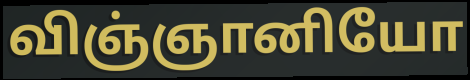
விஞ்ஞானியோ